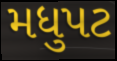
મધુપટ